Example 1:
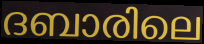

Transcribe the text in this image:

ദബാരിലെ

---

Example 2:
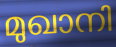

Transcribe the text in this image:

മുഖാനി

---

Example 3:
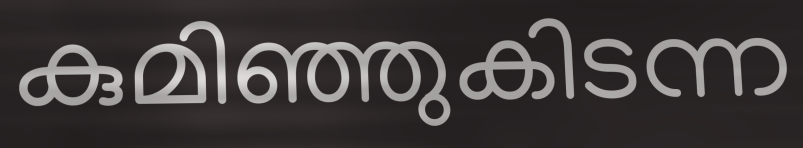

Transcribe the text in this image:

കുമിഞ്ഞുകിടന്ന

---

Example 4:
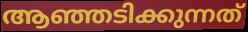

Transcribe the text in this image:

ആഞ്ഞടിക്കുന്നത്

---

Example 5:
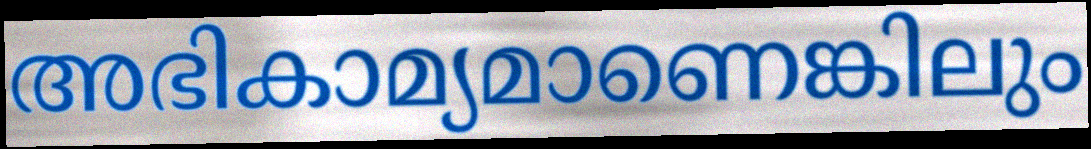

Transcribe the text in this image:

അഭികാമ്യമാണെങ്കിലും